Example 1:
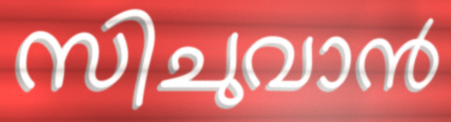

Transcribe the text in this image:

സിചുവാൻ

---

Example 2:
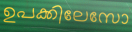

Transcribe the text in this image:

ഉപക്കിലേസോ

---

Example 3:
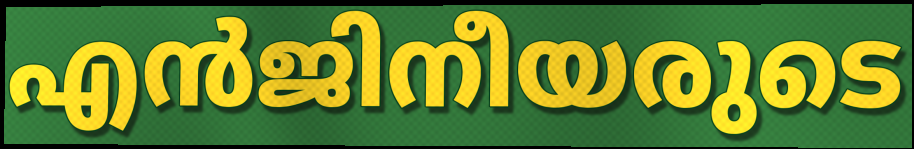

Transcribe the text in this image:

എൻജിനീയരുടെ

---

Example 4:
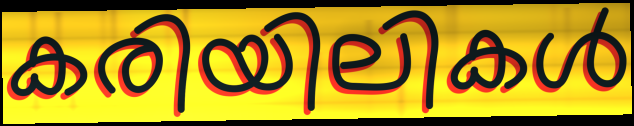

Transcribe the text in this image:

കരിയിലികൾ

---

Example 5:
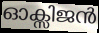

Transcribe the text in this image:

ഓക്സിജൻ